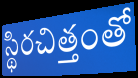
స్థిరచిత్తంతో